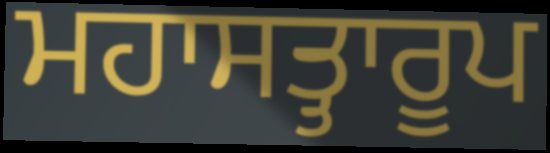
ਮਹਾਸਤ੍ਤਾਰੂਪ